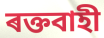
ৰক্তবাহী